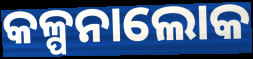
କଳ୍ପନାଲୋକ